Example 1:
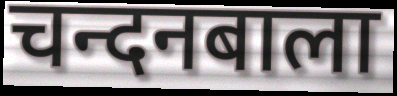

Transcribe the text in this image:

चन्दनबाला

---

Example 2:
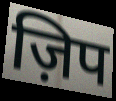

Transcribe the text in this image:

ज़िप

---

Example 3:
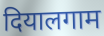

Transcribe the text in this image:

दियालगाम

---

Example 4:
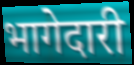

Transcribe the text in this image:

भागेदारी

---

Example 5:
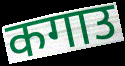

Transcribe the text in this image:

कगाउ